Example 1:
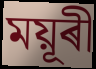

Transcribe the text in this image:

ময়ূৰী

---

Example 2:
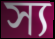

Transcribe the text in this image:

স্য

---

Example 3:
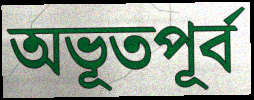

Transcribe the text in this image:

অভূতপূৰ্ব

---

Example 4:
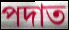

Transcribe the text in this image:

পদাত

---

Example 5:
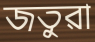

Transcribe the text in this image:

জতুৱা